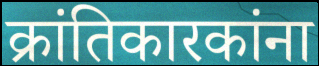
क्रांतिकारकांना